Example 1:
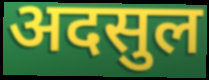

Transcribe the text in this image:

अदसुल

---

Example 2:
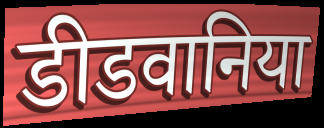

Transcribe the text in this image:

डीडवानिया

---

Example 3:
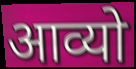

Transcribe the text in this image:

आव्यो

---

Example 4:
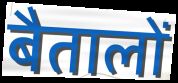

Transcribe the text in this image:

बैतालों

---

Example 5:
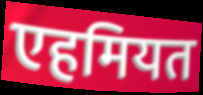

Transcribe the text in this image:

एहमियत